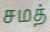
சமத்